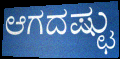
ಆಗದಷ್ಟು